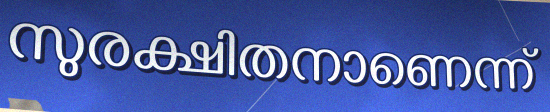
സുരക്ഷിതനാണെന്ന്